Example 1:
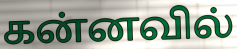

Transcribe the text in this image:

கன்னவில்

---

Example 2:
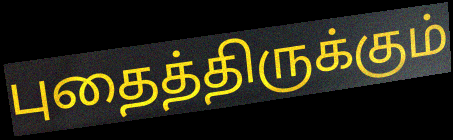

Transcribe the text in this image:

புதைத்திருக்கும்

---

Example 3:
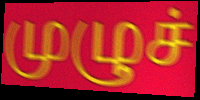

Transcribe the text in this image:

முழுச்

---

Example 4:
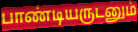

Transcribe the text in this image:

பாண்டியருடனும்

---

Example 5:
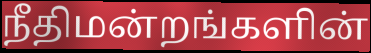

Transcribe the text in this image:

நீதிமன்றங்களின்